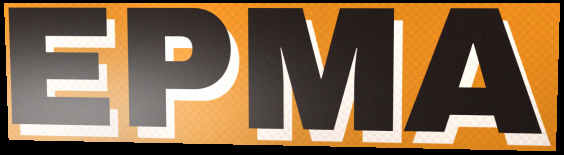
EPMA